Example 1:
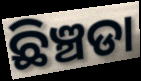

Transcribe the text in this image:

ଛିଞ୍ଚଡା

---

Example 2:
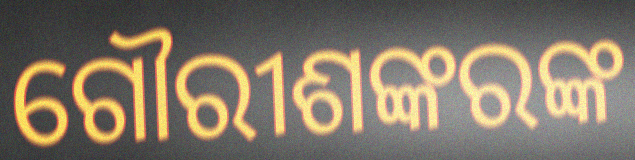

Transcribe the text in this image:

ଗୌରୀଶଙ୍କରଙ୍କ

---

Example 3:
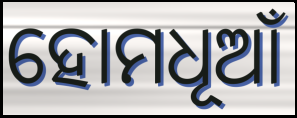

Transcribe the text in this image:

ହୋମଧୂଆଁ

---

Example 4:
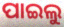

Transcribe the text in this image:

ପାଇଲୁ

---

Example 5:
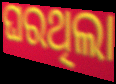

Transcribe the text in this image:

ଘରଥିଲା